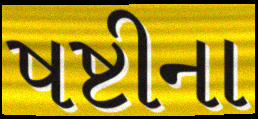
ષષ્ટીના